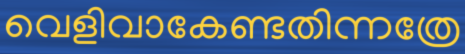
വെളിവാകേണ്ടതിന്നത്രേ